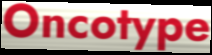
Oncotype